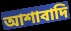
আশাবাদি